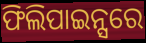
ଫିଲିପାଇନ୍ସରେ